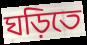
ঘড়িতে